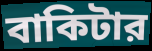
বাকিটার